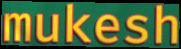
mukesh